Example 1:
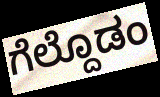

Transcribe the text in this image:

ಗೆಲ್ದೊಡಂ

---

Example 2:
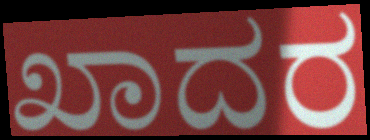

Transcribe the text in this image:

ಖಾದರ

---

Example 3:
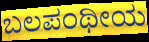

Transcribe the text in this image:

ಬಲಪಂಥೀಯ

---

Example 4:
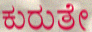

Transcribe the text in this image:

ಕುರುತೇ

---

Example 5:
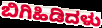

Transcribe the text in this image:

ಬಿಗಿಹಿಡಿದಳು